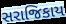
સરાજિકાય